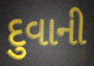
દુવાની